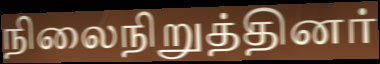
நிலைநிறுத்தினர்